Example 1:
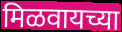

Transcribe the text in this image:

मिळवायच्या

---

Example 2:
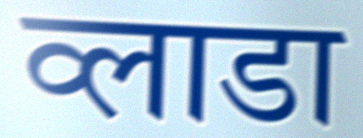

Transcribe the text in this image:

व्लाडा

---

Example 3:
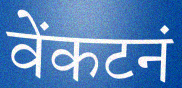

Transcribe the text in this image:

वेंकटनं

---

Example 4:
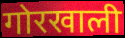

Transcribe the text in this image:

गोरखाली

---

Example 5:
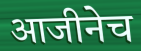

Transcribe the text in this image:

आजीनेच